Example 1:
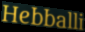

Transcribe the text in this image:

Hebballi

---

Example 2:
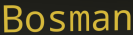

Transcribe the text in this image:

Bosman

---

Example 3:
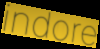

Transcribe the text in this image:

indore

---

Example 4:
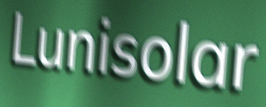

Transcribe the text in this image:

Lunisolar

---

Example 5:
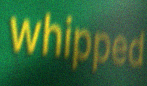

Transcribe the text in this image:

whipped